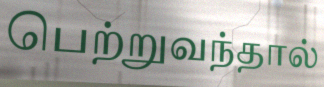
பெற்றுவந்தால்